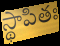
స్థాపితః